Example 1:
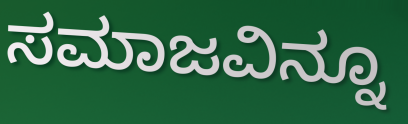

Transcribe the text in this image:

ಸಮಾಜವಿನ್ನೂ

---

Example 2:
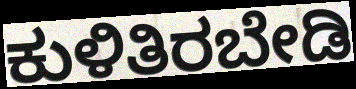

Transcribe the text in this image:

ಕುಳಿತಿರಬೇಡಿ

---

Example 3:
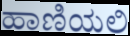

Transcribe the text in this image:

ಹಾಣಿಯಲಿ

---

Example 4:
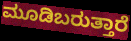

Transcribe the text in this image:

ಮೂಡಿಬರುತ್ತಾರೆ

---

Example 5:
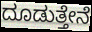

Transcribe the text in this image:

ದೂಡುತ್ತೇನೆ